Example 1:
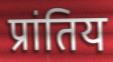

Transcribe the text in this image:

प्रांतिय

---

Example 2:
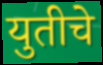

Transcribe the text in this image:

युतीचे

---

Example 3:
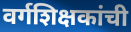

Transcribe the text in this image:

वर्गशिक्षकांची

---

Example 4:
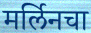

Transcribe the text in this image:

मर्लिनचा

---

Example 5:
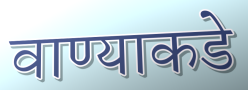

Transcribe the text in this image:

वाण्याकडे